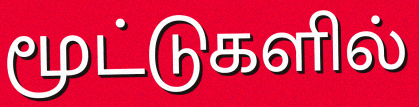
மூட்டுகளில்